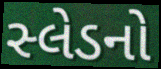
સ્લેડનો